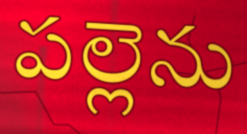
పల్లెను